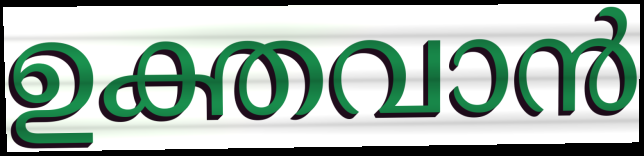
ഉക്തവാൻ